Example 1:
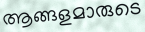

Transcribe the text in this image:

ആങ്ങളമാരുടെ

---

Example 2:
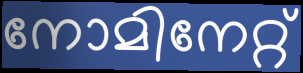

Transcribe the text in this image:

നോമിനേറ്റ്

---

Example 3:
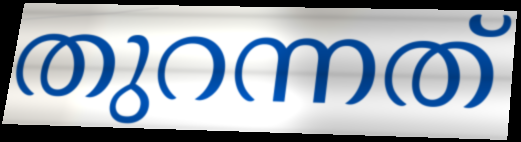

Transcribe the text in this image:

തുറന്നത്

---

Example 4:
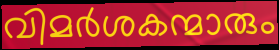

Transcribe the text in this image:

വിമർശകന്മാരും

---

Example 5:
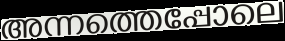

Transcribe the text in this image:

അന്നത്തെപ്പോലെ